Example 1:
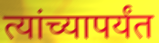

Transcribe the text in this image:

त्यांच्यापर्यंत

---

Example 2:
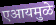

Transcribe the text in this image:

एआयमुळे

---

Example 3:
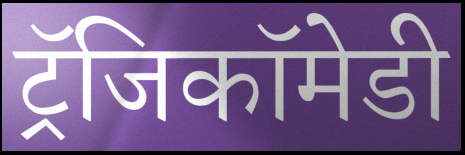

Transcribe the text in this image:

ट्रॅजिकॉमेडी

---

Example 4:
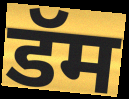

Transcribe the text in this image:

डॅम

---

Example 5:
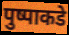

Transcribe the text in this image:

पुष्पाकडे